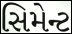
સિમેન્ટ